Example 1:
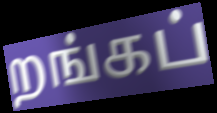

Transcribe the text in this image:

றங்கப்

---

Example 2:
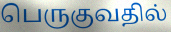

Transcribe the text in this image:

பெருகுவதில்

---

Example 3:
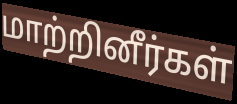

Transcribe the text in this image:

மாற்றினீர்கள்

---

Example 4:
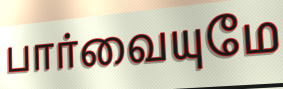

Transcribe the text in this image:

பார்வையுமே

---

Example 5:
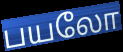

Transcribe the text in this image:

பயலோ